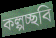
কল্পচ্ছবি